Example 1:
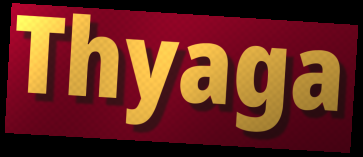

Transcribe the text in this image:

Thyaga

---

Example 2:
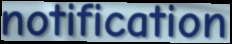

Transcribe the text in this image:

notification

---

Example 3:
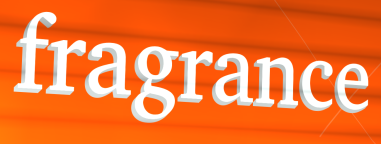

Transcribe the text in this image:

fragrance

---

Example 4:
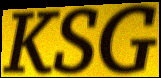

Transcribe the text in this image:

KSG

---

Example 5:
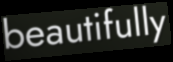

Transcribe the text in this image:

beautifully